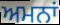
ਅਮਨਾਂ